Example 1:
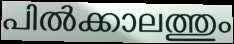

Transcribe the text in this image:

പിൽക്കാലത്തും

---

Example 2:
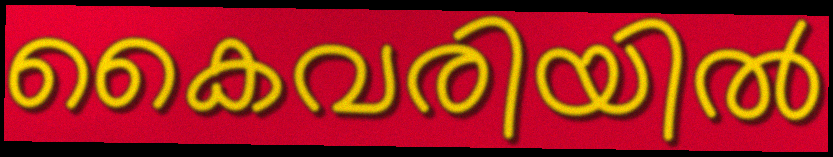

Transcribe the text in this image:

കൈവരിയിൽ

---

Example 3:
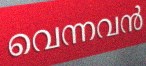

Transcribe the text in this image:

വെന്നവൻ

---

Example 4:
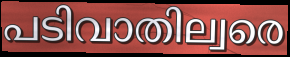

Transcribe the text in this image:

പടിവാതില്വരെ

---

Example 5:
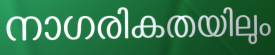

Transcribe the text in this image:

നാഗരികതയിലും